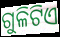
ଗୁଳିଟିଏ